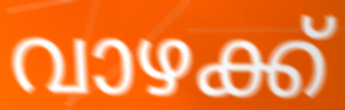
വാഴക്ക്